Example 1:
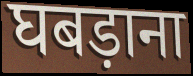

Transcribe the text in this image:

घबड़ाना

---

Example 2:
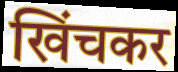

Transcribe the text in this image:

खिंचकर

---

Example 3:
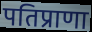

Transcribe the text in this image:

पतिप्राणा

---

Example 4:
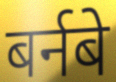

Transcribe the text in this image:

बर्नबे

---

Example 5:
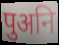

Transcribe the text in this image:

पुअनि